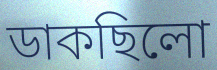
ডাকছিলো